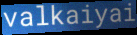
valkaiyai